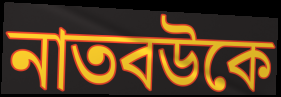
নাতবউকে